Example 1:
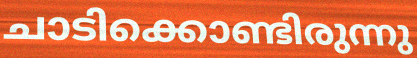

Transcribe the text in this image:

ചാടിക്കൊണ്ടിരുന്നു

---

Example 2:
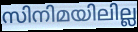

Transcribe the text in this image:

സിനിമയിലില്ല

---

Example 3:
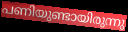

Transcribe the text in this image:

പണിയുണ്ടായിരുന്നു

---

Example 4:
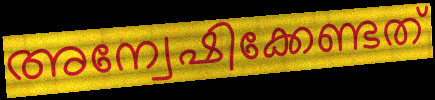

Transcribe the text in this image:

അന്വേഷിക്കേണ്ടത്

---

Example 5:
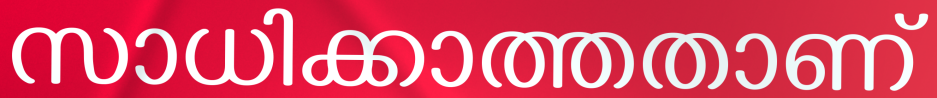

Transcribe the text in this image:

സാധിക്കാത്തതാണ്